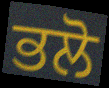
ਭਲੋ